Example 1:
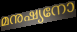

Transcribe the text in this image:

മനുഷ്യനോ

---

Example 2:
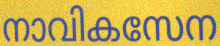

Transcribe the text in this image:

നാവികസേന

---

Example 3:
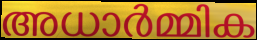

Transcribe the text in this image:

അധാർമ്മിക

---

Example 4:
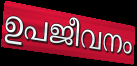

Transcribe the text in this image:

ഉപജീവനം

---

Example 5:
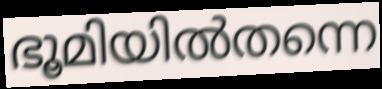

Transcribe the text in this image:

ഭൂമിയിൽതന്നെ